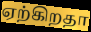
ஏற்கிறதா